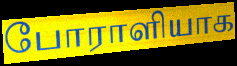
போராளியாக